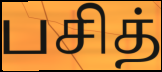
பசித்